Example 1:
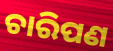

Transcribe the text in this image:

ଚାରିପଣ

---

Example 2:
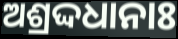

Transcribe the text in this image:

ଅଶ୍ରଦ୍ଦଧାନାଃ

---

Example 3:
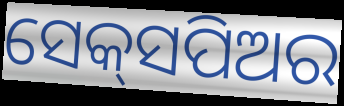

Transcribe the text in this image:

ସେକ୍‌ସପିଅର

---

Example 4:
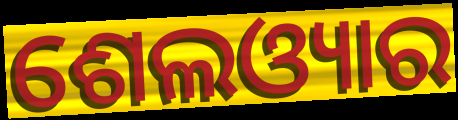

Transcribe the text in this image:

ଶେଲଓ୍ୟାର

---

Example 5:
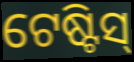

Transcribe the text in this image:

ଟେଷ୍ଟିସ୍